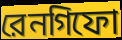
রেনগিফো